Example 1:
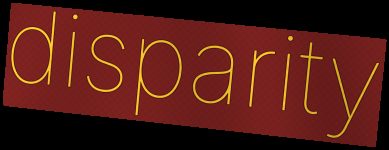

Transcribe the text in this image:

disparity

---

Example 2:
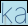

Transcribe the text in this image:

ka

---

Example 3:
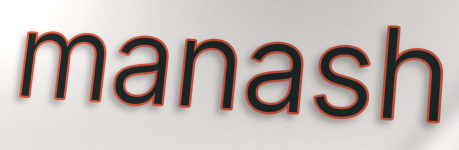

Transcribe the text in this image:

manash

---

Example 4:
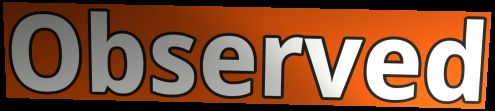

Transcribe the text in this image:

Observed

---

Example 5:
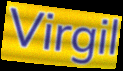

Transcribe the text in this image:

Virgil